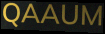
QAAUM